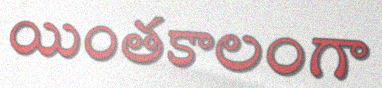
యింతకాలంగా